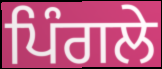
ਪਿੰਗਲੇ